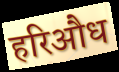
हरिऔध